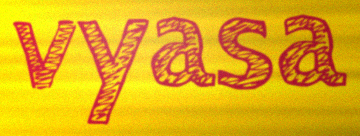
vyasa